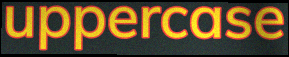
uppercase